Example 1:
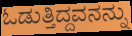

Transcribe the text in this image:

ಓಡುತ್ತಿದ್ದವನನ್ನು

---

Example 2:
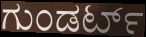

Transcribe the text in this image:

ಗುಂಡರ್ಟ್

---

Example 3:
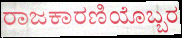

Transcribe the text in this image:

ರಾಜಕಾರಣಿಯೊಬ್ಬರ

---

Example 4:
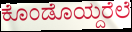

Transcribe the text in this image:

ಕೊಂಡೊಯ್ದರೆಲೆ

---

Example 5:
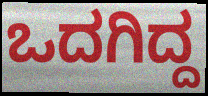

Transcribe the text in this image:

ಒದಗಿದ್ದ